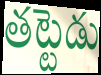
తట్టెడు